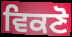
ਵਿਕਣੋ